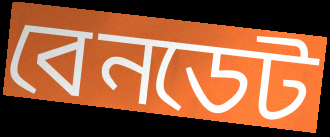
বেনডেট